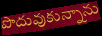
పొదువుకున్నాను